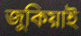
জুকিয়াই